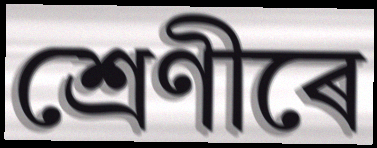
শ্ৰেণীৰে